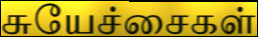
சுயேச்சைகள்